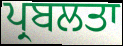
ਪ੍ਰਬਲਤਾ